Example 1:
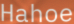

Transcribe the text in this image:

Hahoe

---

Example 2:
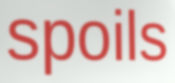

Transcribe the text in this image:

spoils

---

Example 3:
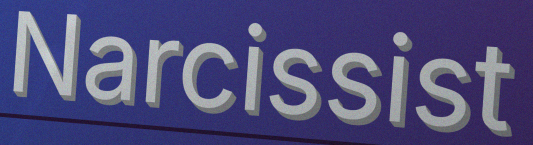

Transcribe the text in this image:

Narcissist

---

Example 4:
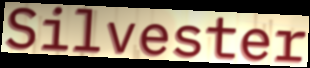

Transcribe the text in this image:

Silvester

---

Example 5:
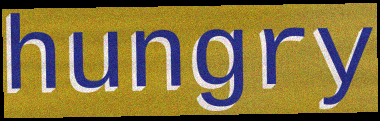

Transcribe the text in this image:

hungry